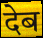
देब